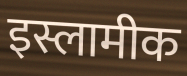
इस्लामीक